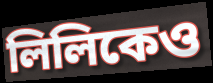
লিলিকেও